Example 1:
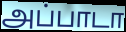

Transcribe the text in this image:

அப்பாடா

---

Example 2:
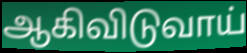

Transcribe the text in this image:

ஆகிவிடுவாய்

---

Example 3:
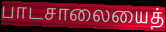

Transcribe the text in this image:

பாடசாலையைத்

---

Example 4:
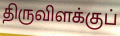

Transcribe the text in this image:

திருவிளக்குப்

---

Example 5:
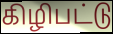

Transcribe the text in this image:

கிழிபட்டு